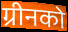
ग्रीनको